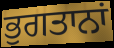
ਭੁਗਤਾਨਾਂ